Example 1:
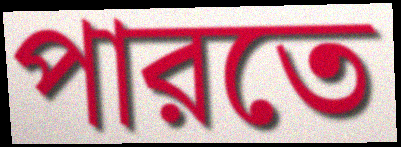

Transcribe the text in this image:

পারতে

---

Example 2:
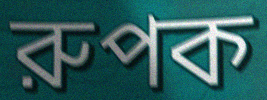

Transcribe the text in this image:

রুপক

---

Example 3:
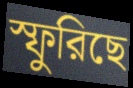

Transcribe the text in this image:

স্ফুরিছে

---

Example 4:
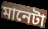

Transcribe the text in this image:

মানেটা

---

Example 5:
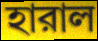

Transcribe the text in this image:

হারাল